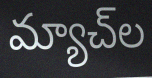
మ్యాచ్‌ల